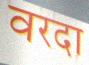
वरदा